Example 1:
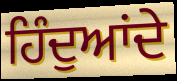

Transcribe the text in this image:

ਹਿੰਦੁਆਂਦੇ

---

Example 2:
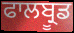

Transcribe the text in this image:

ਫਾਲਬ੍ਰੂਡ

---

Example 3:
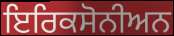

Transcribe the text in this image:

ਇਰਿਕਸੋਨੀਅਨ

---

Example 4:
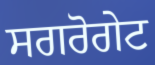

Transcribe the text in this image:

ਸਗਰੋਗੇਟ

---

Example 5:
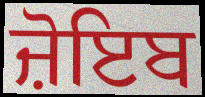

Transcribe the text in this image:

ਜ਼ੋਇਬ